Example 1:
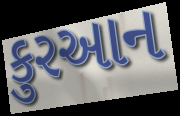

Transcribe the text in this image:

કુરઆન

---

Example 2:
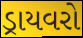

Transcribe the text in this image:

ડ્રાયવરો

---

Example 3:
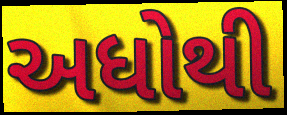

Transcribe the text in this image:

અધોથી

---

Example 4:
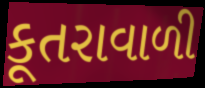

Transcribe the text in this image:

કૂતરાવાળી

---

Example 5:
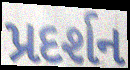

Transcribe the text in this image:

પ્રદર્શન